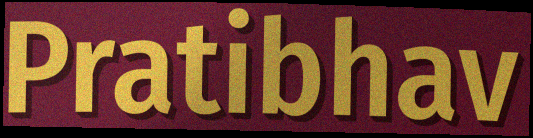
Pratibhav